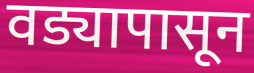
वड्यापासून